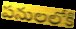
పనులలోకి